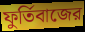
ফুর্তিবাজের